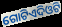
ଗୋଟିଏଦିଓଟି